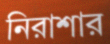
নিরাশার